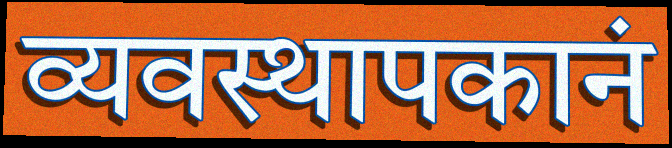
व्यवस्थापकानं